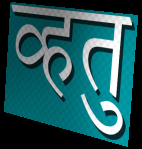
व्हतु